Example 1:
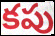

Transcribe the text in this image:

కపు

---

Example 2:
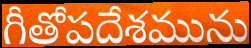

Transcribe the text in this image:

గీతోపదేశమును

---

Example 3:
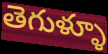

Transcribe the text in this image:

తెగుళ్ళూ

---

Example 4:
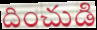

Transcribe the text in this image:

దించుడి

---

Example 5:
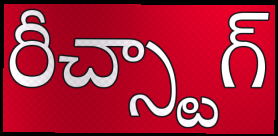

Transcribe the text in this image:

రీచ్స్టాగ్